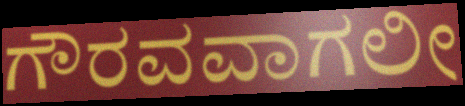
ಗೌರವವಾಗಲೀ